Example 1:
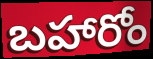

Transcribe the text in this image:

బహారోం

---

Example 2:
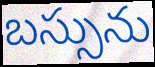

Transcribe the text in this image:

బస్సును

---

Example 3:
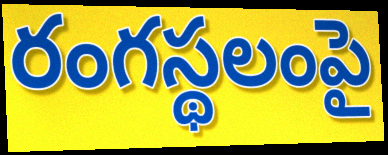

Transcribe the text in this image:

రంగస్థలంపై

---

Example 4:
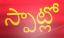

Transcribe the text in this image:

స్పాట్లో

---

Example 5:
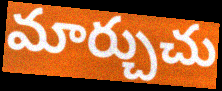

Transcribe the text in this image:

మార్చుచు